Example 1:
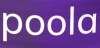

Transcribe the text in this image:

poola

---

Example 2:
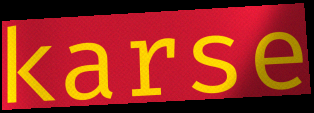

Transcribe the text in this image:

karse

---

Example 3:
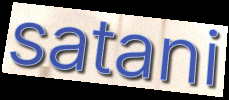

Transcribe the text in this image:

satani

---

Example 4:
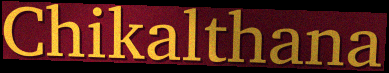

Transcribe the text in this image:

Chikalthana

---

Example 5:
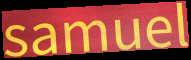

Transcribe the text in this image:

samuel